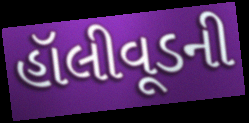
હૉલીવૂડની